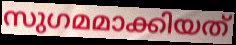
സുഗമമാക്കിയത്